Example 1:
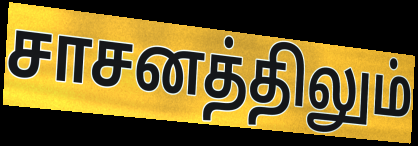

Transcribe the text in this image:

சாசனத்திலும்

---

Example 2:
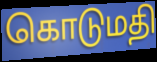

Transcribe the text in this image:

கொடுமதி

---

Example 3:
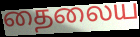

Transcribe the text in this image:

தைலைய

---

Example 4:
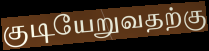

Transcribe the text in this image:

குடியேறுவதற்கு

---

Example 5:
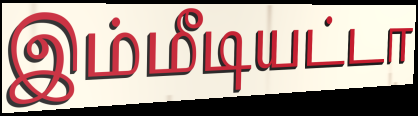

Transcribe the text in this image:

இம்மீடியட்டா